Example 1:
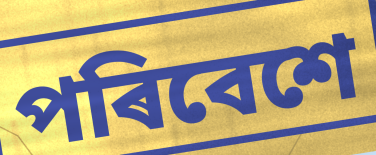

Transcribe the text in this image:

পৰিবেশে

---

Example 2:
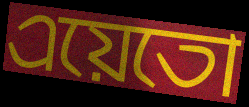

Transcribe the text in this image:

এয়েতো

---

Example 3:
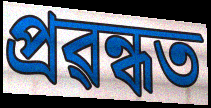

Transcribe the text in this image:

প্ৰৱন্ধত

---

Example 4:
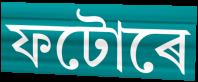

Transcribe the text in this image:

ফটোৰে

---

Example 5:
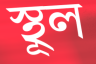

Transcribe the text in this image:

স্থূল